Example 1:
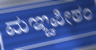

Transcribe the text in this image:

ಮಞ್ಚಪೀಠಂ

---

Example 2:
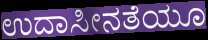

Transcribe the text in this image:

ಉದಾಸೀನತೆಯೂ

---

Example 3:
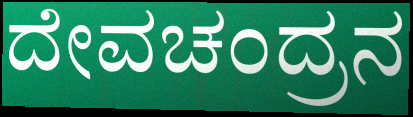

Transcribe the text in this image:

ದೇವಚಂದ್ರನ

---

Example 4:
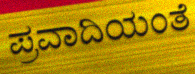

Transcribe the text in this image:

ಪ್ರವಾದಿಯಂತೆ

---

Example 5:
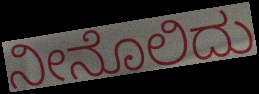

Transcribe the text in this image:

ನೀನೊಲಿದು